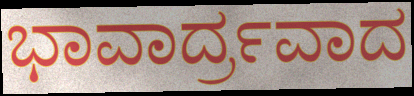
ಭಾವಾರ್ದ್ರವಾದ